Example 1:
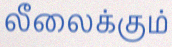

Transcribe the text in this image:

லீலைக்கும்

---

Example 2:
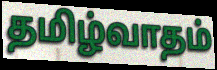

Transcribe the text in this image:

தமிழ்வாதம்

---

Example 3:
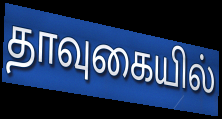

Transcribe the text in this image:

தாவுகையில்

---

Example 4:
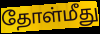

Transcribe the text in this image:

தோள்மீது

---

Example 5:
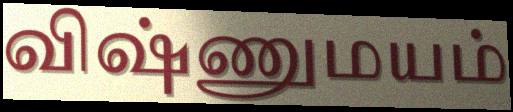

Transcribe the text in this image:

விஷ்ணுமயம்